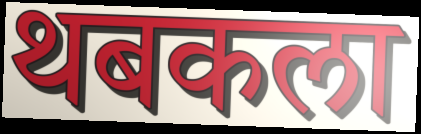
थबकला